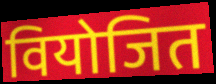
वियोजित